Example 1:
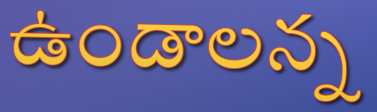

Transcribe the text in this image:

ఉండాలన్న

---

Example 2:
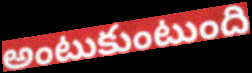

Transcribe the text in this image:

అంటుకుంటుంది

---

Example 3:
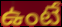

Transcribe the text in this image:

ఉంటే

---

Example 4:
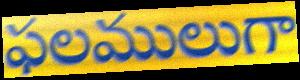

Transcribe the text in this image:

ఫలములుగా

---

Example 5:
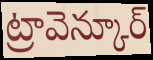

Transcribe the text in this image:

ట్రావెన్కూర్